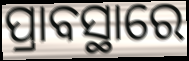
ପ୍ରାବସ୍ଥାରେ